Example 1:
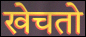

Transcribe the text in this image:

खेचतो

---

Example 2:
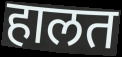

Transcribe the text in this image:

हालत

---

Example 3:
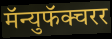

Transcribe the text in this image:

मॅन्युफॅक्चरर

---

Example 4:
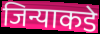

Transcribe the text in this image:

जिन्याकडे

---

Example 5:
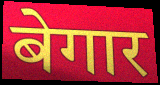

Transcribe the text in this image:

बेगार